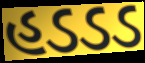
હડડડ